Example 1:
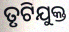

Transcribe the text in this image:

ତୃଟିଯୁକ୍ତ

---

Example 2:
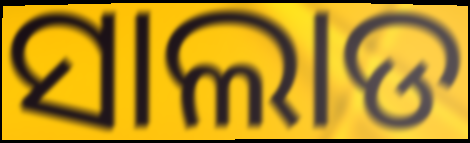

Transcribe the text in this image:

ସାଲାଡ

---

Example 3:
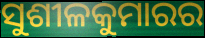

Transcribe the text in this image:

ସୁଶୀଳକୁମାରର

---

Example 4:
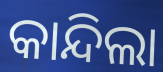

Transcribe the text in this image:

କାନ୍ଦିଲା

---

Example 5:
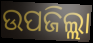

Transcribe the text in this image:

ଉପଜିଲ୍ଲା